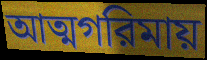
আত্মগরিমায়